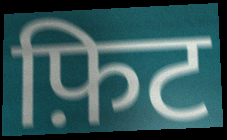
फ़िट